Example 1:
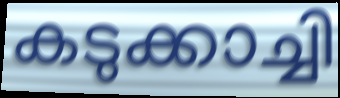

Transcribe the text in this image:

കടുക്കാച്ചി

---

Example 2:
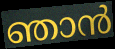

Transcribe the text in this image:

ഞാൻ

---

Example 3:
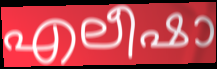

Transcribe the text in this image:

എലീഷാ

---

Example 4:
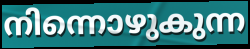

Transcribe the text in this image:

നിന്നൊഴുകുന്ന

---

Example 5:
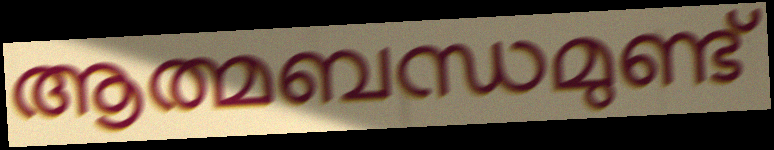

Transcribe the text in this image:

ആത്മബന്ധമുണ്ട്